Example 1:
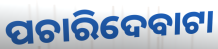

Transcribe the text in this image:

ପଚାରିଦେବାଟା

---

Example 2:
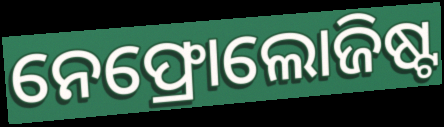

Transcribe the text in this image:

ନେଫ୍ରୋଲୋଜିଷ୍ଟ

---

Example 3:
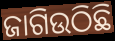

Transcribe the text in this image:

ଜାଗିଉଠିଛି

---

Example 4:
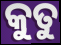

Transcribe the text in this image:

କୁତୁ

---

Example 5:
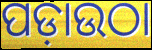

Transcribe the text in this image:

ପଡ଼ାଉଠା